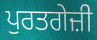
ਪੁਰਤਗੇਜ਼ੀ